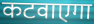
कटवाएगा